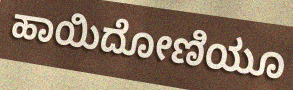
ಹಾಯಿದೋಣಿಯೂ